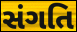
સંગતિ